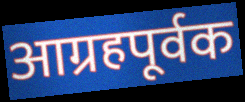
आग्रहपूर्वक